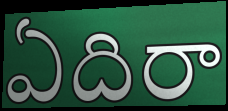
ఏదిరా